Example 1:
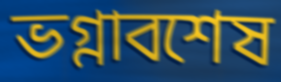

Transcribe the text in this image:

ভগ্নাবশেষ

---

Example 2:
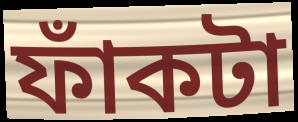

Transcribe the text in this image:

ফাঁকটা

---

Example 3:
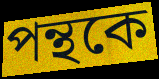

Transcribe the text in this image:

পন্থকে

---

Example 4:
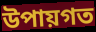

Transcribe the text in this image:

উপায়গত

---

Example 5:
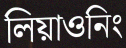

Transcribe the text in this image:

লিয়াওনিং